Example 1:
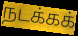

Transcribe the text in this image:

நடக்கக்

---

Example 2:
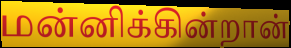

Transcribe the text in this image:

மன்னிக்கின்றான்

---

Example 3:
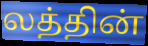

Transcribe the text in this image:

லத்தின்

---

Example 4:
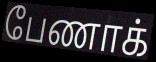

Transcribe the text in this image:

பேணாக்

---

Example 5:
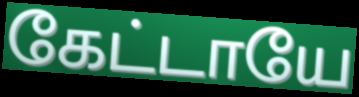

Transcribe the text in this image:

கேட்டாயே